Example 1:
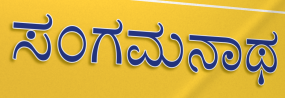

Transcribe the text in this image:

ಸಂಗಮನಾಥ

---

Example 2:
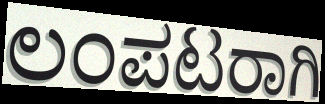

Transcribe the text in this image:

ಲಂಪಟರಾಗಿ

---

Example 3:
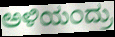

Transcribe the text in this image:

ಅಳಿಯಂದ್ರು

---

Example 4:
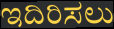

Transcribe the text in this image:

ಇದಿರಿಸಲು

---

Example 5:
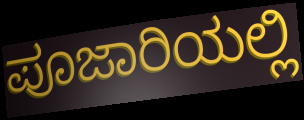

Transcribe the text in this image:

ಪೂಜಾರಿಯಲ್ಲಿ